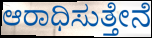
ಆರಾಧಿಸುತ್ತೇನೆ